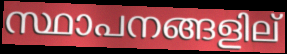
സ്ഥാപനങ്ങളില്